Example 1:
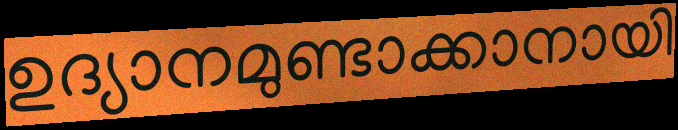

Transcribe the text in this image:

ഉദ്യാനമുണ്ടാക്കാനായി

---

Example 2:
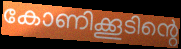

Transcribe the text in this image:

കോണിക്കൂടിന്റെ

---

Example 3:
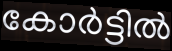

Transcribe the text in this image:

കോർട്ടിൽ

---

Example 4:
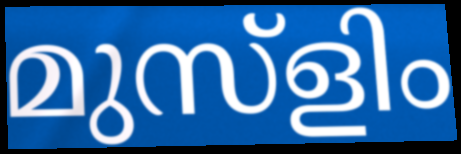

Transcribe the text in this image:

മുസ്ളിം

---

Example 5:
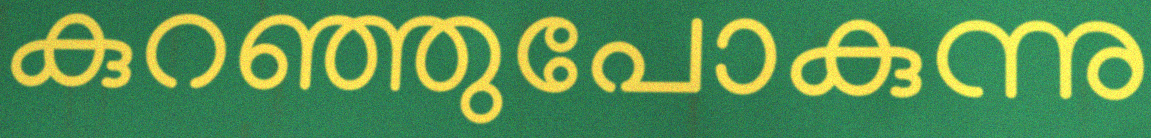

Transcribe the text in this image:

കുറഞ്ഞുപോകുന്നു